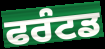
ਫਰੰਟਡ